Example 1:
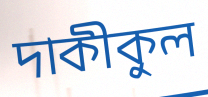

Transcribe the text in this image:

দাকীকুল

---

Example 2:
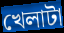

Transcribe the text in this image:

খেলাটা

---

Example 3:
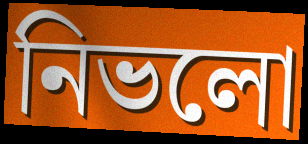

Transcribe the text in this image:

নিভলো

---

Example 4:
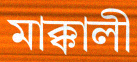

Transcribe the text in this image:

মাক্কালী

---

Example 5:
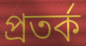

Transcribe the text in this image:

প্রতর্ক